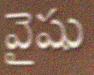
వైషు